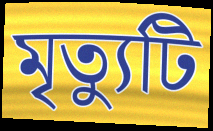
মৃত্যুটি